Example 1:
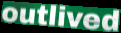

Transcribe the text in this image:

outlived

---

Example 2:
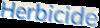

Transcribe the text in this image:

Herbicide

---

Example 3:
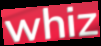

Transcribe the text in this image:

whiz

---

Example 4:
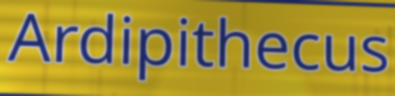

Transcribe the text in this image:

Ardipithecus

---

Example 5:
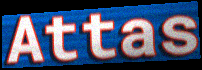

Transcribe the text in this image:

Attas